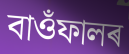
বাওঁফালৰ